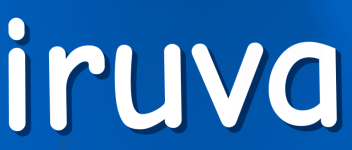
iruva